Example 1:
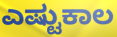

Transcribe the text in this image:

ಎಷ್ಟುಕಾಲ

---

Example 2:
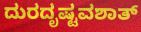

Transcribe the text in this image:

ದುರದೃಷ್ಟವಶಾತ್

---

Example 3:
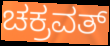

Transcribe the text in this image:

ಚಕ್ರವತ್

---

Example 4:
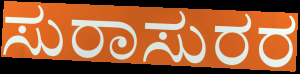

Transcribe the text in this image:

ಸುರಾಸುರರ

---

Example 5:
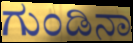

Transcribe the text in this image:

ಗುಂಡಿನಾ